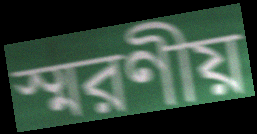
স্মরণীয়